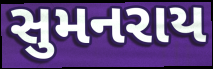
સુમનરાય